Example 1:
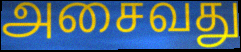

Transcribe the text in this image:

அசைவது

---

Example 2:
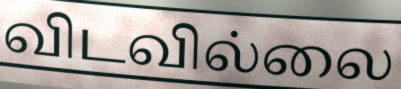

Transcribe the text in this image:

விடவில்லை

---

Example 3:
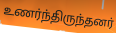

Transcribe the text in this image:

உணர்ந்திருந்தனர்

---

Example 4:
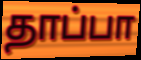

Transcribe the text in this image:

தாப்பா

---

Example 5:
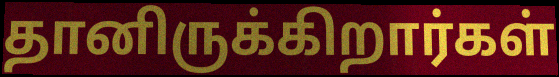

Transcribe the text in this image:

தானிருக்கிறார்கள்